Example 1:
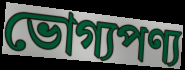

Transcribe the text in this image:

ভোগ্যপণ্য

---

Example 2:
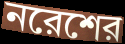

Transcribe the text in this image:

নরেশের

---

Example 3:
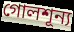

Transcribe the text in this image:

গোলশূন্য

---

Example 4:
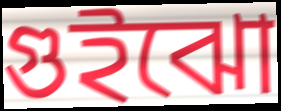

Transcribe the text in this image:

গুইঝো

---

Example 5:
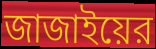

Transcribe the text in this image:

জাজাইয়ের